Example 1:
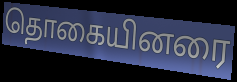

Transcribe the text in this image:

தொகையினரை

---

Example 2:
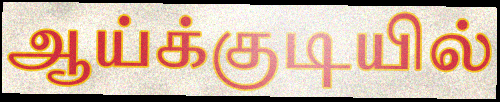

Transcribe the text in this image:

ஆய்க்குடியில்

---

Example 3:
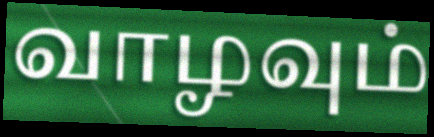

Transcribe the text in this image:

வாழவும்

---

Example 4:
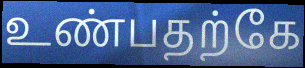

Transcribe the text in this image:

உண்பதற்கே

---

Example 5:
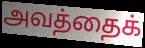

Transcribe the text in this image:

அவத்தைக்